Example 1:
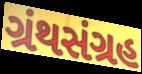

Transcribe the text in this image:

ગ્રંથસંગ્રહ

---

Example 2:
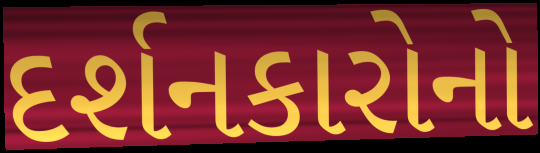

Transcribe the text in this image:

દર્શનકારોનો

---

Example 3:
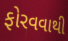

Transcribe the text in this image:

ફોરવવાથી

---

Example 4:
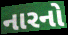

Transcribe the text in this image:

નારનો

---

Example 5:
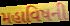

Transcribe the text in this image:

મહાવિષની